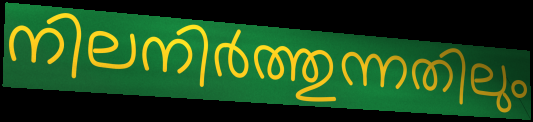
നിലനിർത്തുന്നതിലും